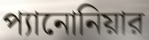
প্যানোনিয়ার